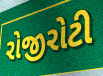
રોજીરોટી